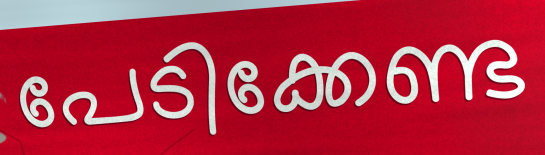
പേടിക്കേണ്ട